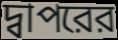
দ্বাপরের